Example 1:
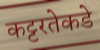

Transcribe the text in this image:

कट्टरतेकडे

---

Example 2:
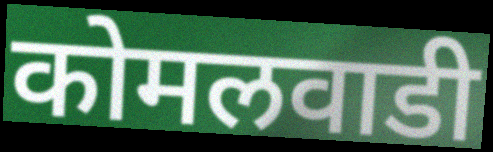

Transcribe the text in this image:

कोमलवाडी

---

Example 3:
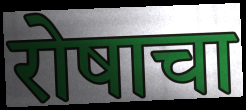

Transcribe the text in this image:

रोषाचा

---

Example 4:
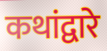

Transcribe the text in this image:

कथांद्वारे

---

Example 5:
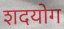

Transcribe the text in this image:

शदयोग